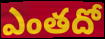
ఎంతదో